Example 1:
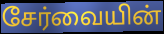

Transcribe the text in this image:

சேர்வையின்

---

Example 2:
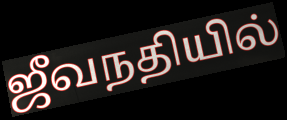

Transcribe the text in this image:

ஜீவநதியில்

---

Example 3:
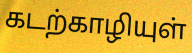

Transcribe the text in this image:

கடற்காழியுள்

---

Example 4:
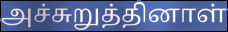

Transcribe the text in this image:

அச்சுறுத்தினாள்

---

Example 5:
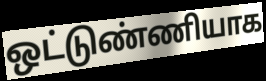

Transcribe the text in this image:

ஒட்டுண்ணியாக